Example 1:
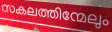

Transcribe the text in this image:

സകലത്തിന്മേലും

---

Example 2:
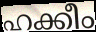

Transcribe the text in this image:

ഹക്കീം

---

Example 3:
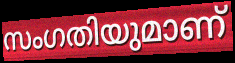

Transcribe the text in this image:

സംഗതിയുമാണ്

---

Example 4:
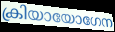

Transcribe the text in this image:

ക്രിയായോഗേന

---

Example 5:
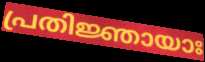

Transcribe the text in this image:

പ്രതിജ്ഞായാഃ